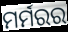
ମର୍ମରର